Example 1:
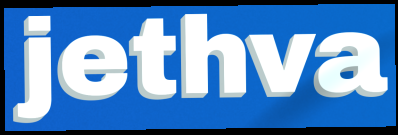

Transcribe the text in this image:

jethva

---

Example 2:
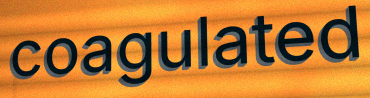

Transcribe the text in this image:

coagulated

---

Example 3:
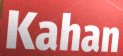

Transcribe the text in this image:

Kahan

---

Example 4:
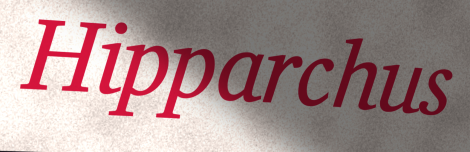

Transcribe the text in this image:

Hipparchus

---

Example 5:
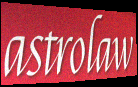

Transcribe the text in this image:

astrolaw